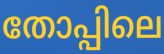
തോപ്പിലെ